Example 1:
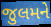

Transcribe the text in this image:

જુલમને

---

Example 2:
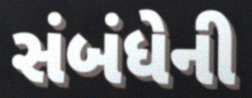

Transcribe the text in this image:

સંબંધેની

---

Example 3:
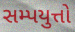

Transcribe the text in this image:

સમ્પયુત્તો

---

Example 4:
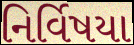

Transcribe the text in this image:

નિર્વિષયા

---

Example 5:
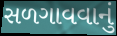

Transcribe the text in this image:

સળગાવવાનું